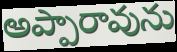
అప్పారావును